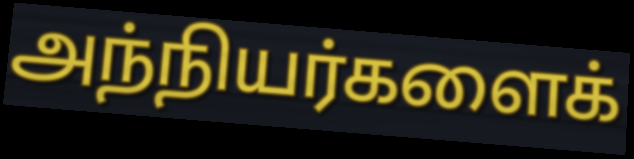
அந்நியர்களைக்